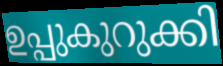
ഉപ്പുകുറുക്കി